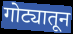
गोट्यातून